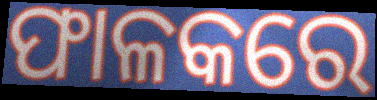
ଫାଳକରେ